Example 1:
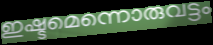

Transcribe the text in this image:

ഇഷ്ടമെന്നൊരുവട്ടം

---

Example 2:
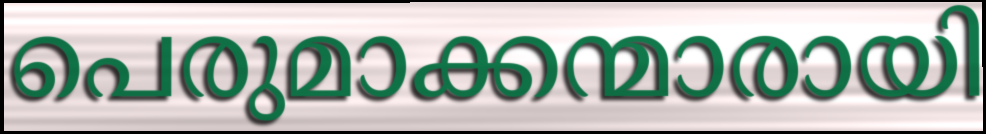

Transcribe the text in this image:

പെരുമാക്കന്മാരായി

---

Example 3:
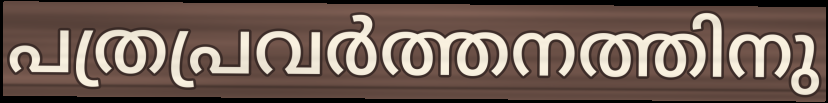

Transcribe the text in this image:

പത്രപ്രവർത്തനത്തിനു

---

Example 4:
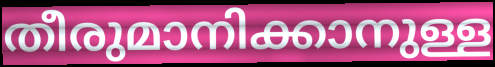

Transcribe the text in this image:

തീരുമാനിക്കാനുള്ള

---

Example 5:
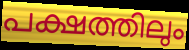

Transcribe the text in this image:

പക്ഷത്തിലും